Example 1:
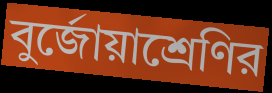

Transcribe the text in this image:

বুর্জোয়াশ্রেণির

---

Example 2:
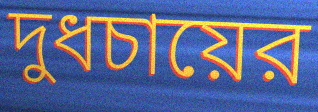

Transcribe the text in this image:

দুধচায়ের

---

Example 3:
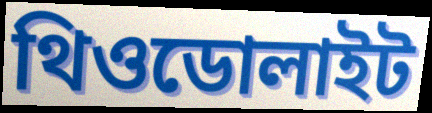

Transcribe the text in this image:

থিওডোলাইট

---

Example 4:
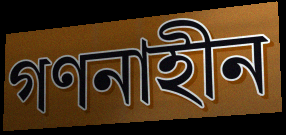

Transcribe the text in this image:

গণনাহীন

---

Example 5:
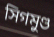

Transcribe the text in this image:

সিগমুণ্ড